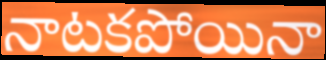
నాటకపోయినా